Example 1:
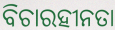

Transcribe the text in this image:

ବିଚାରହୀନତା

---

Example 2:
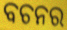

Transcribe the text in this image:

ବଚନର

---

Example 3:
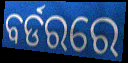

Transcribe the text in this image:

ବର୍ଡରରେ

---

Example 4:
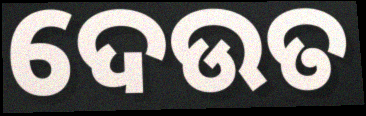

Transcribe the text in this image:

ଦେଉତ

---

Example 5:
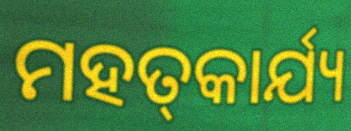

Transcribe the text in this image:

ମହତ୍‌କାର୍ଯ୍ୟ